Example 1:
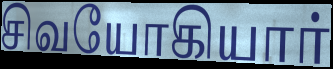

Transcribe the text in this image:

சிவயோகியார்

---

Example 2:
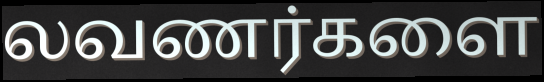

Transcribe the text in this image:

லவணர்களை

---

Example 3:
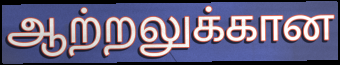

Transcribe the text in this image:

ஆற்றலுக்கான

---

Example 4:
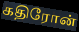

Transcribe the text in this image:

கதிரோன்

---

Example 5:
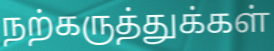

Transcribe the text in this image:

நற்கருத்துக்கள்